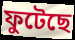
ফুটেছে